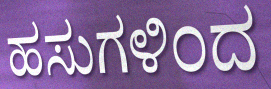
ಹಸುಗಳಿಂದ